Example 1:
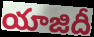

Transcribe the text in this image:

యాజిదీ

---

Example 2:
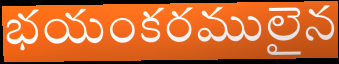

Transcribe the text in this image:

భయంకరములైన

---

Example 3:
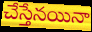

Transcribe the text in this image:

చేస్తేనయినా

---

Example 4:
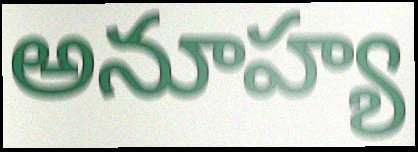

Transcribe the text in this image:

అనూహ్య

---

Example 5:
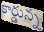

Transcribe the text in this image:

కార్డున్న